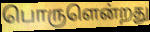
பொருளென்றது